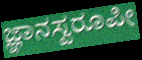
ಜ್ಞಾನಸ್ವರೂಪೀ